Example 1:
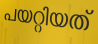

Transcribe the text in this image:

പയറ്റിയത്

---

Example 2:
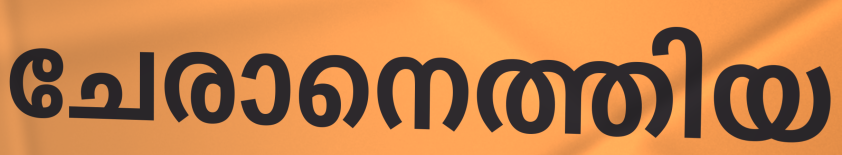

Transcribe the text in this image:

ചേരാനെത്തിയ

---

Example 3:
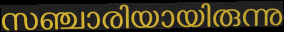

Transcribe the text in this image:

സഞ്ചാരിയായിരുന്നു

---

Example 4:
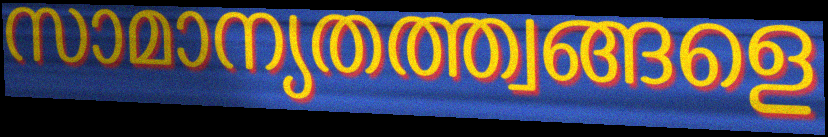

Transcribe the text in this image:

സാമാന്യതത്ത്വങ്ങളെ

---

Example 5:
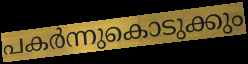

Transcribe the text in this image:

പകർന്നുകൊടുക്കും